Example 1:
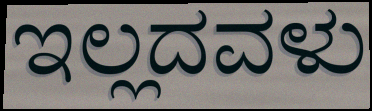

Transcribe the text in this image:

ಇಲ್ಲದವಳು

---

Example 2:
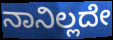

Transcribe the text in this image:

ನಾನಿಲ್ಲದೇ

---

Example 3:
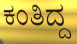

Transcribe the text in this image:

ಕಂತಿದ್ದ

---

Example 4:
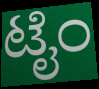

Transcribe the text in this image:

ಟೈಂ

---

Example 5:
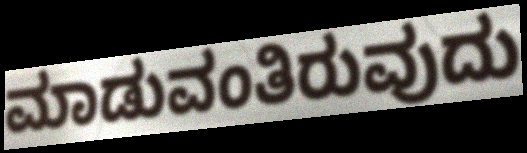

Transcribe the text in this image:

ಮಾಡುವಂತಿರುವುದು